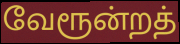
வேரூன்றத்